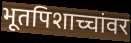
भूतपिशाच्चांवर